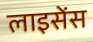
लाइसेंस